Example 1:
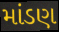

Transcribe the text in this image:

માંડણ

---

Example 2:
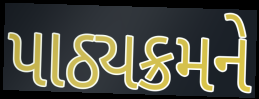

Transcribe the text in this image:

પાઠ્યક્રમને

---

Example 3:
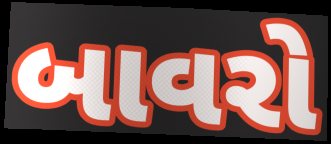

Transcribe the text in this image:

બાવરો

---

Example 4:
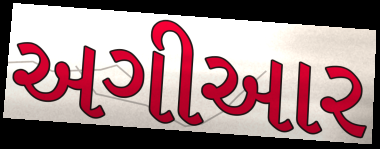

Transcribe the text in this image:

અગીઆર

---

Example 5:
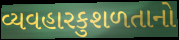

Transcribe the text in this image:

વ્યવહારકુશળતાનો